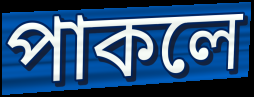
পাকলে